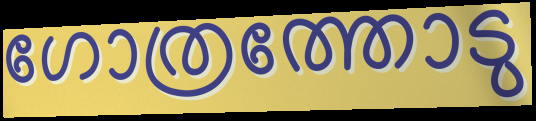
ഗോത്രത്തോടു